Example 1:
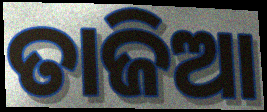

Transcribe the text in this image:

ତାଜିଆ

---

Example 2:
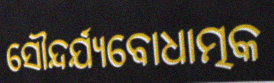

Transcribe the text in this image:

ସୌନ୍ଦର୍ଯ୍ୟବୋଧାତ୍ମକ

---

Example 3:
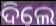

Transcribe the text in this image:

ଦିଲେ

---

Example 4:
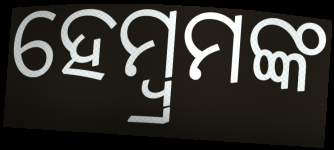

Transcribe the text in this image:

ହେମ୍ବ୍ରମଙ୍କ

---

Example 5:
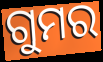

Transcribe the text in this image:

ଗୁମର